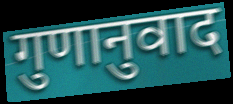
गुणानुवाद